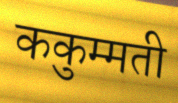
ककुम्मती